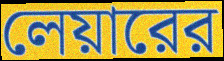
লেয়ারের